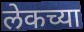
लेकच्या